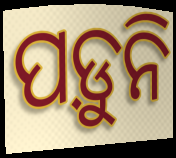
ପଡ଼ୁନି